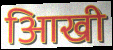
आिखी